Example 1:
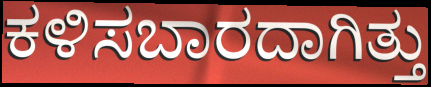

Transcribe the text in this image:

ಕಳಿಸಬಾರದಾಗಿತ್ತು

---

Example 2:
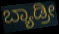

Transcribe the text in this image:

ಬ್ಯಾಡ್ರೀ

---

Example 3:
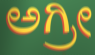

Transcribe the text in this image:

ಅಗ್ರೀ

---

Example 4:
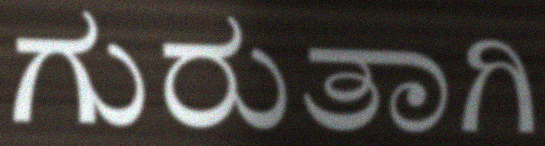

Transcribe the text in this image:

ಗುರುತಾಗಿ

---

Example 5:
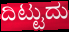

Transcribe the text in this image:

ದಿಟ್ಟುದು